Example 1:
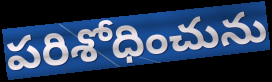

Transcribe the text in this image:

పరిశోధించును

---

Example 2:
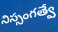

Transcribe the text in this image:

నిస్సంగత్వే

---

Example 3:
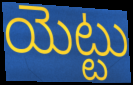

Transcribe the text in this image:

యెట్టు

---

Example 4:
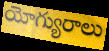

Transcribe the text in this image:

యోగ్యురాలు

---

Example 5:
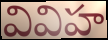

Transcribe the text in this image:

వివిహ